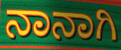
ನಾನಾಗಿ